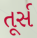
તૂર્સ